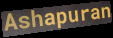
Ashapuran